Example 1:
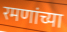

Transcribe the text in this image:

रमणांच्या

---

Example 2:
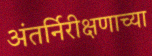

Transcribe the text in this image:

अंतर्निरीक्षणाच्या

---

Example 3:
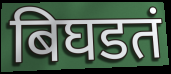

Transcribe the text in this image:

बिघडतं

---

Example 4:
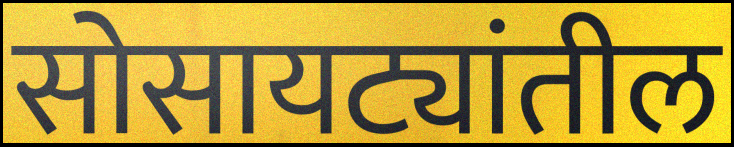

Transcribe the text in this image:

सोसायट्यांतील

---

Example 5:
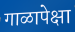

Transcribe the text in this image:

गाळापेक्षा